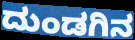
ದುಂಡಗಿನ